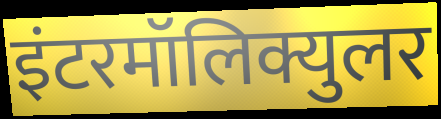
इंटरमॉलिक्युलर